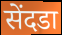
सेंदडा